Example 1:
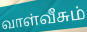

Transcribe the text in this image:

வாள்வீசும்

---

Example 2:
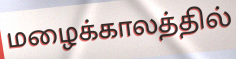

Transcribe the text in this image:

மழைக்காலத்தில்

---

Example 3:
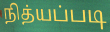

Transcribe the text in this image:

நித்யப்படி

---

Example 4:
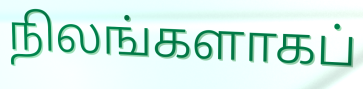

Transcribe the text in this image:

நிலங்களாகப்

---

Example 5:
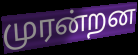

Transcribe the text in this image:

முரன்றன